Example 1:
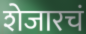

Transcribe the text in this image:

शेजारचं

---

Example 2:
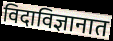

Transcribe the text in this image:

विदाविज्ञानात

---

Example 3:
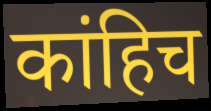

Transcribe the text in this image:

कांहिच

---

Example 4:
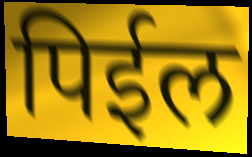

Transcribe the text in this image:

पिईल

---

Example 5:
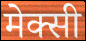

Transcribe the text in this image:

मेक्सी